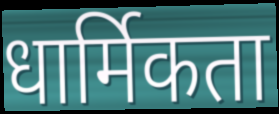
धार्मिकता